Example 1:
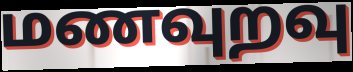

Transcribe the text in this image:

மணவுறவு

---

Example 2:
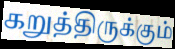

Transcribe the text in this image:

கறுத்திருக்கும்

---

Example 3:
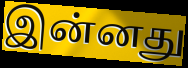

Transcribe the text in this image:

இன்னது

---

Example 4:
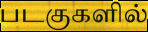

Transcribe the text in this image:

படகுகளில்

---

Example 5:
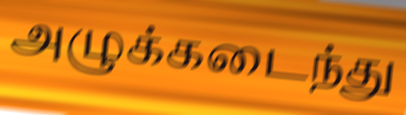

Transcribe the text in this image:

அழுக்கடைந்து